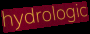
hydrologic